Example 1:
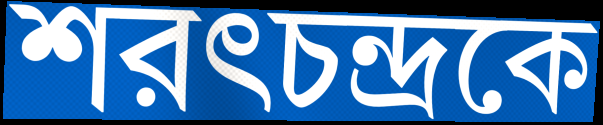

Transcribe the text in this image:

শরৎচন্দ্রকে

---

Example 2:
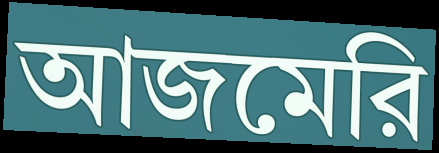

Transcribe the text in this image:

আজমেরি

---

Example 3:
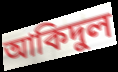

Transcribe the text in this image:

আকিদুল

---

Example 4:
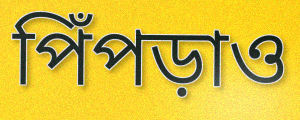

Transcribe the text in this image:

পিঁপড়াও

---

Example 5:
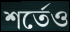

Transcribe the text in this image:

শর্তেও